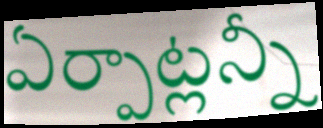
ఏర్పాట్లన్నీ